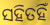
ସହିତହିଁ